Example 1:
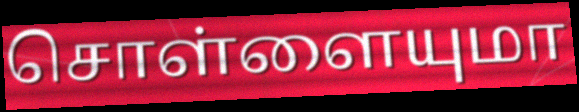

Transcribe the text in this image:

சொள்ளையுமா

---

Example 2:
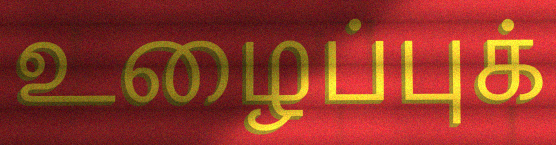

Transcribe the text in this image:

உழைப்புக்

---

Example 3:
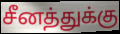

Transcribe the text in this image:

சீனத்துக்கு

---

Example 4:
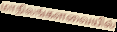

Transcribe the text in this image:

மாநிலங்களவையில்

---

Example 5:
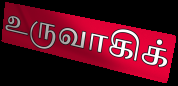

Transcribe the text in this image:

உருவாகிக்